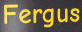
Fergus